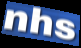
nhs